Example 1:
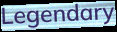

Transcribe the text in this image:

Legendary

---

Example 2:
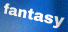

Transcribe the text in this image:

fantasy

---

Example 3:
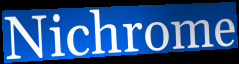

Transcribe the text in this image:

Nichrome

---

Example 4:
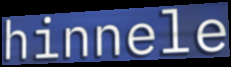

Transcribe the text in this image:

hinnele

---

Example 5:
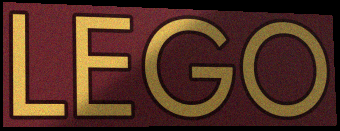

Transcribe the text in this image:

LEGO